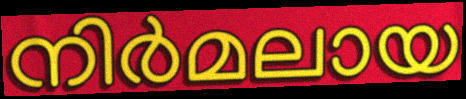
നിർമലായ